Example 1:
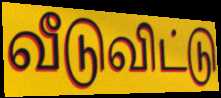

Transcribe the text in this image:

வீடுவிட்டு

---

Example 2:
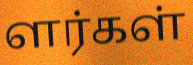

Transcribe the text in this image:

ளர்கள்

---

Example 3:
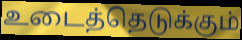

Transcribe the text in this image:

உடைத்தெடுக்கும்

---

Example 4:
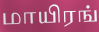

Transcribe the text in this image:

மாயிரங்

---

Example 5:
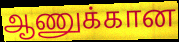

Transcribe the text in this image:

ஆணுக்கான